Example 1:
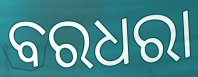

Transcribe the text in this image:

ବରଧରା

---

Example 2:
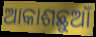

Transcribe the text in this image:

ଆକାଶଛୁଆଁ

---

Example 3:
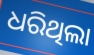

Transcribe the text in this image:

ଧରିଥିଲା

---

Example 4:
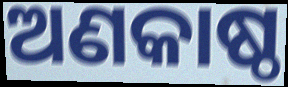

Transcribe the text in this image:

ଅଣକାଷ୍ଠ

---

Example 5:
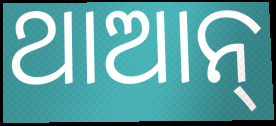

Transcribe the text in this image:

ଥାଆନ୍